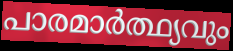
പാരമാർത്ഥ്യവും